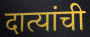
दात्यांची